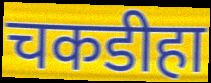
चकडीहा